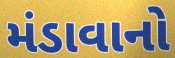
મંડાવાનો